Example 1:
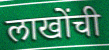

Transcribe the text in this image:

लाखोंची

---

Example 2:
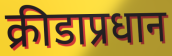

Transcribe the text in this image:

क्रीडाप्रधान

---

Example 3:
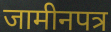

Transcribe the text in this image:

जामीनपत्र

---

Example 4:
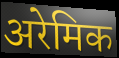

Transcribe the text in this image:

अरेमिक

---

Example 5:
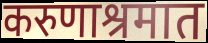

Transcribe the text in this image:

करुणाश्रमात